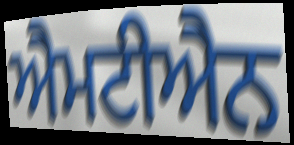
ਐਮਟੀਐਨ